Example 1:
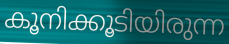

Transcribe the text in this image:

കൂനിക്കൂടിയിരുന്ന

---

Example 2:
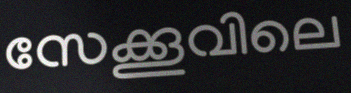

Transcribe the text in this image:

സേക്കൂവിലെ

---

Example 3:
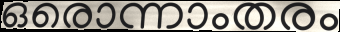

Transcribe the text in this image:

ഒരൊന്നാംതരം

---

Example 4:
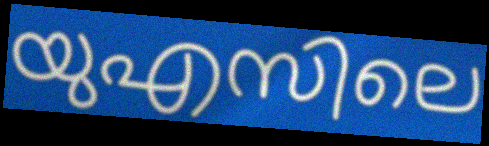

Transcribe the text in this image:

യുഎസിലെ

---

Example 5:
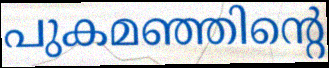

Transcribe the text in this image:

പുകമഞ്ഞിന്റെ